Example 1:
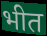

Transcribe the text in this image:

भीत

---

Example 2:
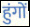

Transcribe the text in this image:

हुंगों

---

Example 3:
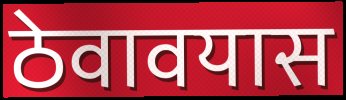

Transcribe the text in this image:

ठेवावयास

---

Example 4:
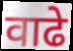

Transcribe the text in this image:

वाढे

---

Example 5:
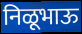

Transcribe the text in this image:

निळूभाऊ